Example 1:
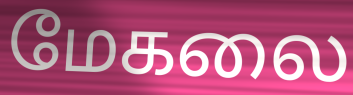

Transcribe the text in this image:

மேகலை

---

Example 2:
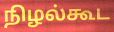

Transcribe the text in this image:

நிழல்கூட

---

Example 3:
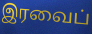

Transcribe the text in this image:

இரவைப்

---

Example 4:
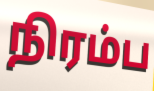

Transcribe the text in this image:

நிரம்ப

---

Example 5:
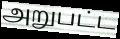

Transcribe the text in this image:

அறுபட்ட